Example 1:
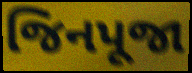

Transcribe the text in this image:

જિનપૂજા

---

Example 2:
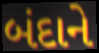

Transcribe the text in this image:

બંદાને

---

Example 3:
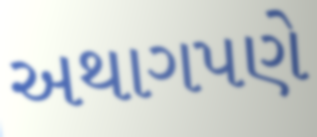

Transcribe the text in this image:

અથાગપણે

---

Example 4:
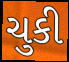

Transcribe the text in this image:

ચુકી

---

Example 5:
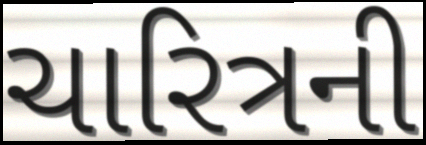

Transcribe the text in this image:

ચારિત્રની